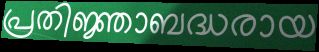
പ്രതിജ്ഞാബദ്ധരായ